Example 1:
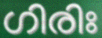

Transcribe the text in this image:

ഗിരിഃ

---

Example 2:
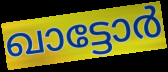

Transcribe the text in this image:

ഖാട്ടോർ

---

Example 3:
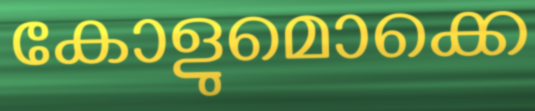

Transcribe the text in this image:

കോളുമൊക്കെ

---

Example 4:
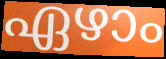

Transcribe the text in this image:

ഏഴാം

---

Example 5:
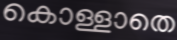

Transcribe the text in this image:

കൊള്ളാതെ